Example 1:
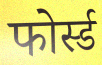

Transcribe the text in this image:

फोर्स्ड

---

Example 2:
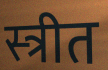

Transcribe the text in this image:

स्त्रीत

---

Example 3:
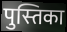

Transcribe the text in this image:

पुस्तिका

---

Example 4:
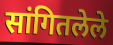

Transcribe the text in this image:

सांगितलेले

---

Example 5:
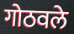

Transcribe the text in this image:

गोठवले